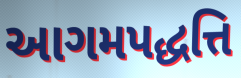
આગમપદ્ધત્તિ